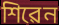
শিৱেন